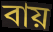
বায়